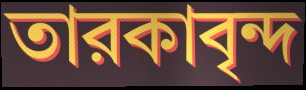
তারকাবৃন্দ